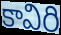
కావిరి